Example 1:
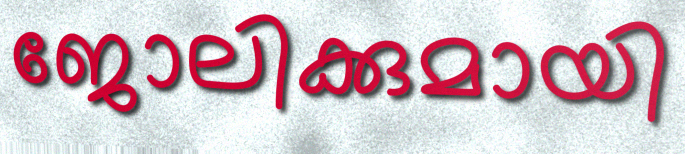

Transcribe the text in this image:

ജോലിക്കുമായി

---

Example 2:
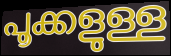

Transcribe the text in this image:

പൂക്കളുള്ള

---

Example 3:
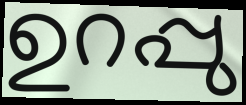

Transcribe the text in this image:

ഉറപ്പു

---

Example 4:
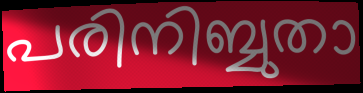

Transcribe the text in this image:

പരിനിബ്ബുതാ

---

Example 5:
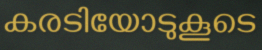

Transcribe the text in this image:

കരടിയോടുകൂടെ